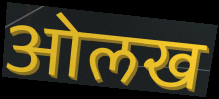
ओलख